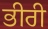
ਭੀਰੀ